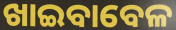
ଖାଇବାବେଳ